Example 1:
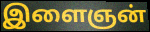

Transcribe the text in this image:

இளைஞன்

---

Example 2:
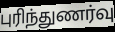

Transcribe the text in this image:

புரிந்துணர்வு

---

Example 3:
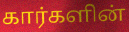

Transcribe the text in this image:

கார்களின்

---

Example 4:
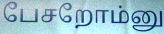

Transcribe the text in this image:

பேசறோம்னு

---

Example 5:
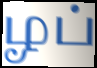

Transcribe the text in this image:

ழப்